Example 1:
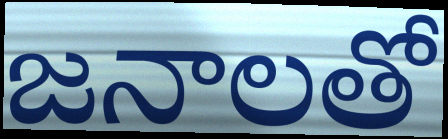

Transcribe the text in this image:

జనాలతో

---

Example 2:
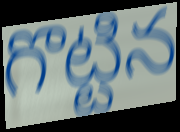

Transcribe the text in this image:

గొట్టిన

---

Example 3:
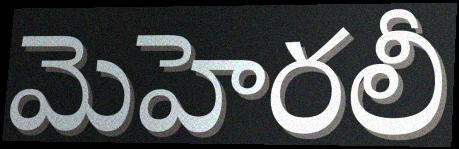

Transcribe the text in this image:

మెహెరలీ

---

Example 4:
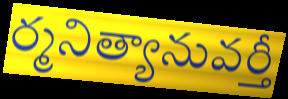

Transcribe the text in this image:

ర్మనిత్యానువర్తీ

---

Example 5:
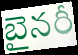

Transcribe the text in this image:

బైనరీ